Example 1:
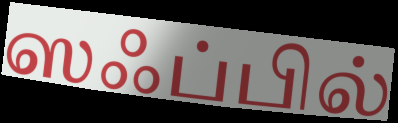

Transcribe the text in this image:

ஸஃப்பில்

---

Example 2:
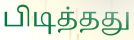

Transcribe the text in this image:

பிடித்தது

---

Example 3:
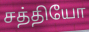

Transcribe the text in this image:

சத்தியோ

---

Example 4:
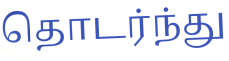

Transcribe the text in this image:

தொடர்ந்து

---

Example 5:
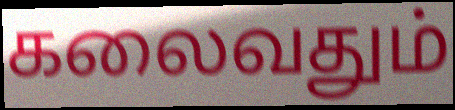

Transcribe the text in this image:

கலைவதும்